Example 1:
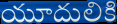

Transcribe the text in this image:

యూదులికి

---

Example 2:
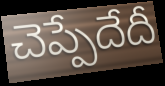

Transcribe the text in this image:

చెప్పేదేదీ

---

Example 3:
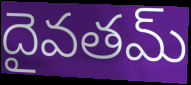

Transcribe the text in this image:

దైవతమ్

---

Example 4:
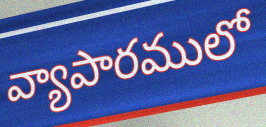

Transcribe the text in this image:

వ్యాపారములో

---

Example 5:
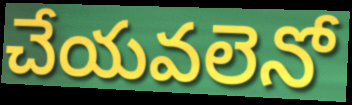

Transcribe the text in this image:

చేయవలెనో